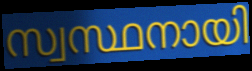
സ്വസ്ഥനായി